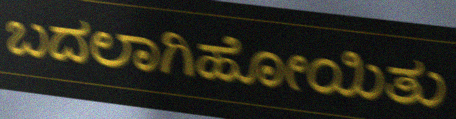
ಬದಲಾಗಿಹೋಯಿತು